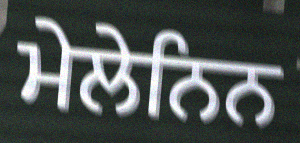
ਮੇਲੇਨਿਨ